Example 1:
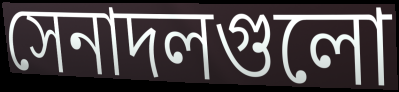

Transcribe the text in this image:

সেনাদলগুলো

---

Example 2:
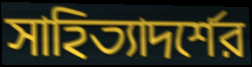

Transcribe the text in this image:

সাহিত্যাদর্শের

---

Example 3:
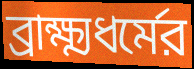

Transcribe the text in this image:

ব্রাক্ষ্মধর্মের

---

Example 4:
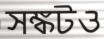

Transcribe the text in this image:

সঙ্কটও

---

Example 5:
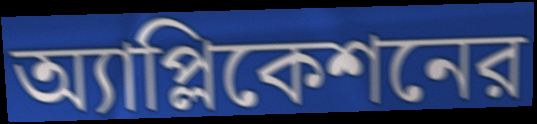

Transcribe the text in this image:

অ্যাপ্লিকেশনের